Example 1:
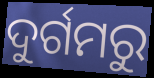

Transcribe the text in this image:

ଦୁର୍ଗମରୁ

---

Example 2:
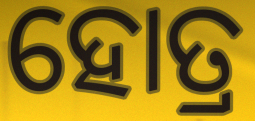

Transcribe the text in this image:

ହୋତ୍ର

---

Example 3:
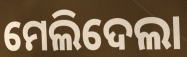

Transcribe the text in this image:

ମେଲିଦେଲା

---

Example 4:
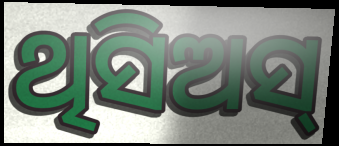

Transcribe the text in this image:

ଥିସିଅସ୍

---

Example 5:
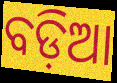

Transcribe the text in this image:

ବଡ଼ିଆ